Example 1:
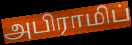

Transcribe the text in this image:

அபிராமிப்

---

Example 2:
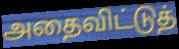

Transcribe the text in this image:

அதைவிட்டுத்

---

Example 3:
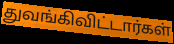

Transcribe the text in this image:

துவங்கிவிட்டார்கள்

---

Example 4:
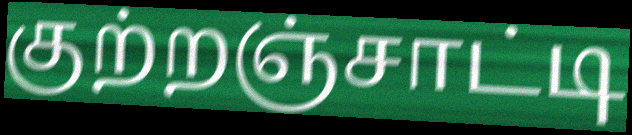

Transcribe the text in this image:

குற்றஞ்சாட்டி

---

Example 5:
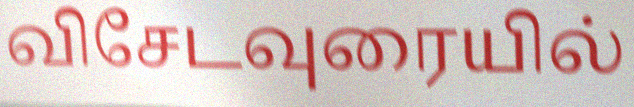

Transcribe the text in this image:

விசேடவுரையில்